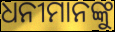
ଧନୀମାନଙ୍କୁ